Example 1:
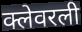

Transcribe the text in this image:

क्लेवरली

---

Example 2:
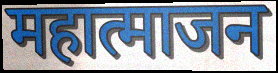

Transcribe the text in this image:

महात्माजन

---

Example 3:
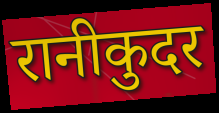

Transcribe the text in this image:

रानीकुदर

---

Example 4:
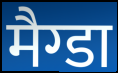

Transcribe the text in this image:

मैग्डा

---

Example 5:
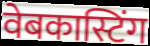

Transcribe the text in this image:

वेबकास्टिंग